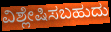
ವಿಶ್ಲೇಷಿಸಬಹುದು